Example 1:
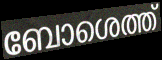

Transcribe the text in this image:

ബോശെത്ത്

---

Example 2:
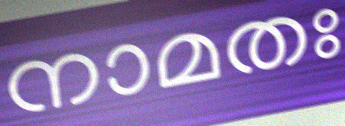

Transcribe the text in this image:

നാമതഃ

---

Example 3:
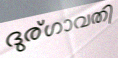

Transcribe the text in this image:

ദുര്ഗാവതി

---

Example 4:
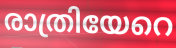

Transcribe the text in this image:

രാത്രിയേറെ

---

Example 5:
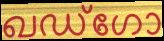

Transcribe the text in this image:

ഖഡ്ഗോ